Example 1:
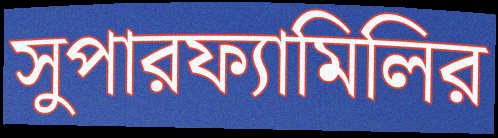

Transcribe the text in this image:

সুপারফ্যামিলির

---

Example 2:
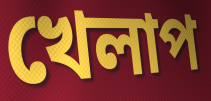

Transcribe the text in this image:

খেলাপ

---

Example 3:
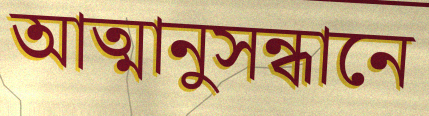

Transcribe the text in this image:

আত্মানুসন্ধানে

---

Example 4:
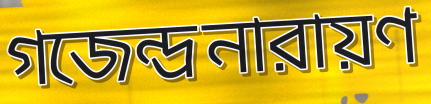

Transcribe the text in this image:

গজেন্দ্রনারায়ণ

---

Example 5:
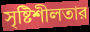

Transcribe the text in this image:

সৃষ্টিশীলতার